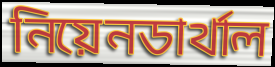
নিয়েনডার্থাল